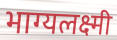
भाग्यलक्ष्मी